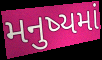
મનુષ્યમાં